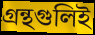
গ্রন্থগুলিই